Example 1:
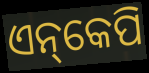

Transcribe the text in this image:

ଏନ୍‌କେପି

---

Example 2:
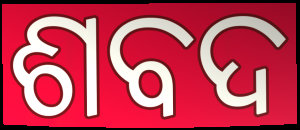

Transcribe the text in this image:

ଶବଦ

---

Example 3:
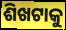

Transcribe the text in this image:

ଶିଖଟାକୁ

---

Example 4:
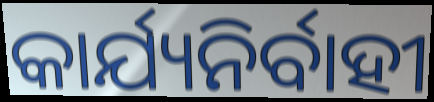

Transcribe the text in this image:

କାର୍ଯ୍ୟନିର୍ବାହୀ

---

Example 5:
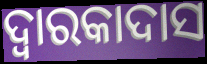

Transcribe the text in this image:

ଦ୍ୱାରକାଦାସ